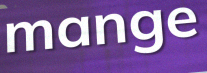
mange